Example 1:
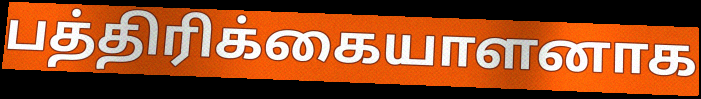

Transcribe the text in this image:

பத்திரிக்கையாளனாக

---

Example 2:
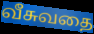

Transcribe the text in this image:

வீசுவதை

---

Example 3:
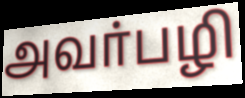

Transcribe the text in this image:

அவர்பழி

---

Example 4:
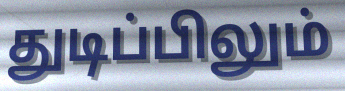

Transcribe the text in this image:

துடிப்பிலும்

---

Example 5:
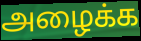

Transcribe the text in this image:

அழைக்க